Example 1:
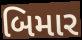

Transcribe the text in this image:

બિમાર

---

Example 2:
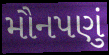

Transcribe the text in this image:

મૌનપણું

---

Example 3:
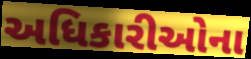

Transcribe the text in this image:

અધિકારીઓના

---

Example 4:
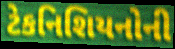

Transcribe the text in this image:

ટેકનિશિયનોની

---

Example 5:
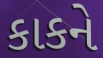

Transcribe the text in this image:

કાકને